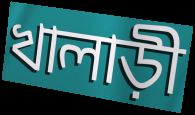
খালাড়ী